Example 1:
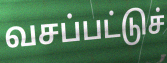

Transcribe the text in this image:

வசப்பட்டுச்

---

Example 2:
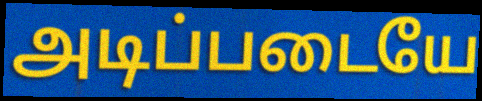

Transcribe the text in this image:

அடிப்படையே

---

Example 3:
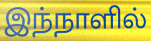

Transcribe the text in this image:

இந்நாளில்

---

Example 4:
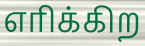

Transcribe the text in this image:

எரிக்கிற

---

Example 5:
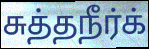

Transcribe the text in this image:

சுத்தநீர்க்